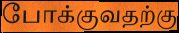
போக்குவதற்கு